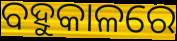
ବହୁକାଳରେ